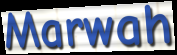
Marwah